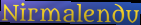
Nirmalendu